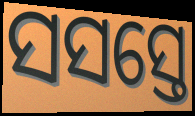
ସସସ୍ତେ